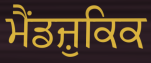
ਮੈਂਡਜ਼ੁਕਿਕ